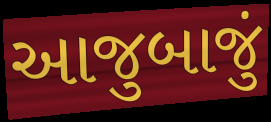
આજુબાજું